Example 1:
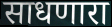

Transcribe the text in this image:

साधणारा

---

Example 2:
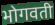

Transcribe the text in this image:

भोगवती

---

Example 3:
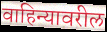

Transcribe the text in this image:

वाहिन्यावरील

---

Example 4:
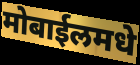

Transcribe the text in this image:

मोबाईलमधे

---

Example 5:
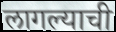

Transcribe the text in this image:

लागल्याची